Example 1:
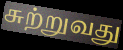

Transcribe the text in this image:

சுற்றுவது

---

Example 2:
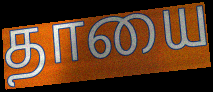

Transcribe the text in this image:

தாயை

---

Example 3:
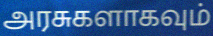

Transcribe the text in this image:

அரசுகளாகவும்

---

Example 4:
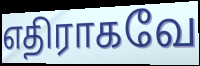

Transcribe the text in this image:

எதிராகவே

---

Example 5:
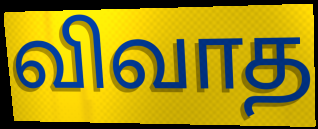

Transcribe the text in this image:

விவாத